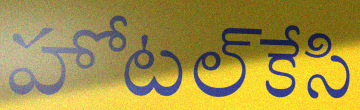
హోటల్‌కేసి